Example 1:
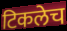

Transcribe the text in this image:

टिकलेच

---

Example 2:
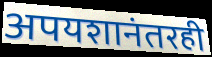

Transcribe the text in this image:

अपयशानंतरही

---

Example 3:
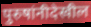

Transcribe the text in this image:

पुरुषांनीदेखील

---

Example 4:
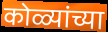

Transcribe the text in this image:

कोळ्यांच्या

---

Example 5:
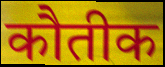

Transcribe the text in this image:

कौतीक